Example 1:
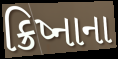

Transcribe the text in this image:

ક્રિષ્નાના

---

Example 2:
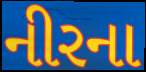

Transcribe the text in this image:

નીરના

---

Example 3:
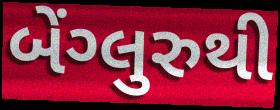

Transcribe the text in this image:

બેંગ્લુરુથી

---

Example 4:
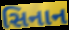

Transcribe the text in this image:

સિનાન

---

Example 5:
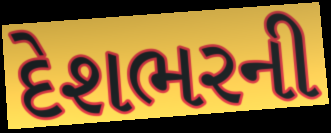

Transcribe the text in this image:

દેશભરની